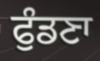
ਫੁੰਡਣਾ